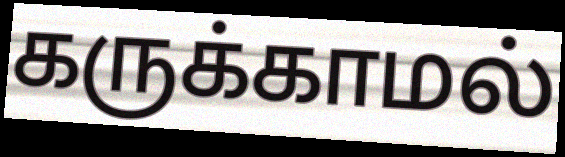
கருக்காமல்